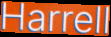
Harrell